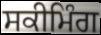
ਸਕੀਮਿੰਗ